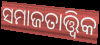
ସମାଜତାତ୍ତ୍ୱିକ